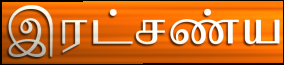
இரட்சண்ய